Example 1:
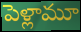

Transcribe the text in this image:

పెళ్లామూ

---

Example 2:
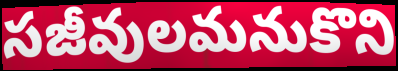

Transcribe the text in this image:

సజీవులమనుకొని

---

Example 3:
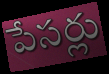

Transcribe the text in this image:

పేసర్లు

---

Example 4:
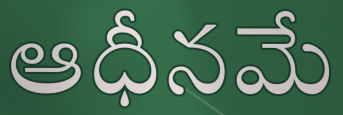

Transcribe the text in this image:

ఆధీనమే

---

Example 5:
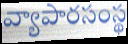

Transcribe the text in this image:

వ్యాపారసంస్థ